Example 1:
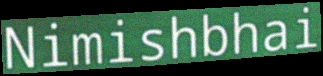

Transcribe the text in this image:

Nimishbhai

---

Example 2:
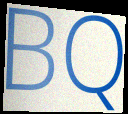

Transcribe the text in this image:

BQ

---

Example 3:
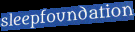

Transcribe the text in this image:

sleepfoundation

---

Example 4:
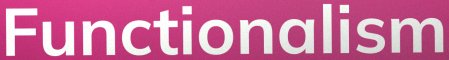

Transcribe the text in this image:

Functionalism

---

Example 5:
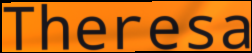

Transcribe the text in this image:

Theresa